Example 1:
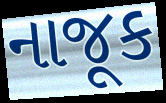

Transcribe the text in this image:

નાજૂક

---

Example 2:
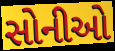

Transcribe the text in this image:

સોનીઓ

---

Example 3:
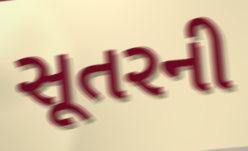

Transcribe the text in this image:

સૂતરની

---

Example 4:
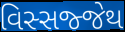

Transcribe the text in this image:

વિસ્સજ્જેથ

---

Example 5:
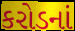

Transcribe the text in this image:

કરોડનાં